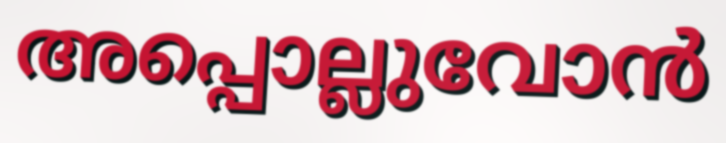
അപ്പൊല്ലുവോൻ